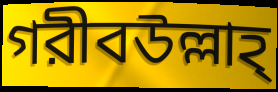
গরীবউল্লাহ্